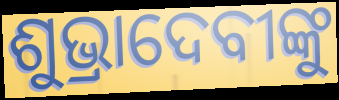
ଶୁଭ୍ରାଦେବୀଙ୍କୁ